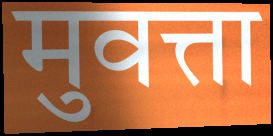
मुवत्ता